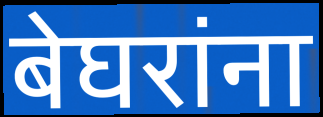
बेघरांना